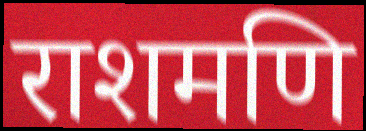
राशमणि